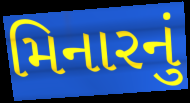
મિનારનું